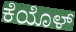
ಕೆಯೊಳ್